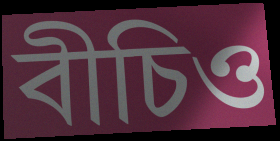
বীচিও